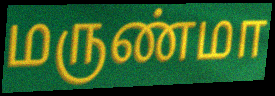
மருண்மா